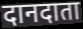
दानदाता